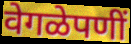
वेगळेपणीं